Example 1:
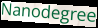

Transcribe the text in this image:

Nanodegree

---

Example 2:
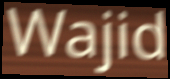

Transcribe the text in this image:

Wajid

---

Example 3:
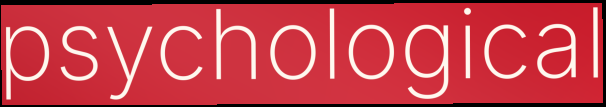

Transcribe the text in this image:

psychological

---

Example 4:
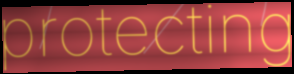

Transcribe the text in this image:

protecting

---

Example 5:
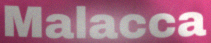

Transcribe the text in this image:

Malacca